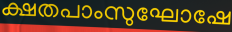
ക്ഷതപാംസുഘോഷേ